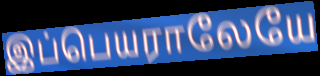
இப்பெயராலேயே